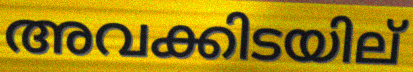
അവക്കിടയില്